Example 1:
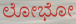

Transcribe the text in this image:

ಲೋಭೋ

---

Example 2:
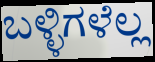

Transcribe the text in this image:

ಬಳ್ಳಿಗಳೆಲ್ಲ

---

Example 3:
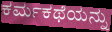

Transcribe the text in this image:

ಕರ್ಮಕಥೆಯನ್ನು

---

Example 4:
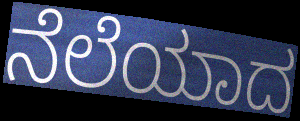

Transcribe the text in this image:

ನೆಲೆಯಾದ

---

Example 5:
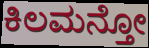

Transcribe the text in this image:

ಕಿಲಮನ್ತೋ